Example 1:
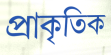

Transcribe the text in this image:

প্ৰাকৃতিক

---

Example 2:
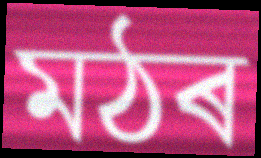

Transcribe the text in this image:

মঠৰ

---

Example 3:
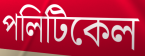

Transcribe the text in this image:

পলিটিকেল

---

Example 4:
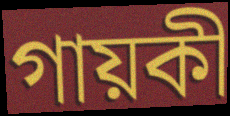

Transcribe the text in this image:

গায়কী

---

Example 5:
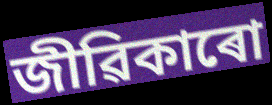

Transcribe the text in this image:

জীৱিকাৰো